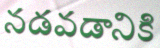
నడవడానికి